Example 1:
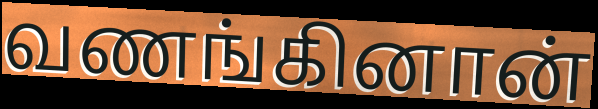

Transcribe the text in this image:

வணங்கினான்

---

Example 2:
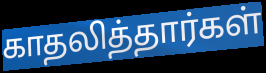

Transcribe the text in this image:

காதலித்தார்கள்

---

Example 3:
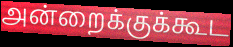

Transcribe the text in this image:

அன்றைக்குக்கூட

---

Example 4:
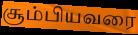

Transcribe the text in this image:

சூம்பியவரை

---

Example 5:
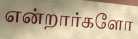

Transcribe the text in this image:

என்றார்களோ